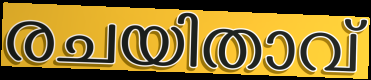
രചയിതാവ്